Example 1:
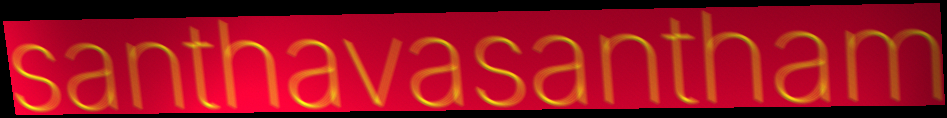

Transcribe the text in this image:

santhavasantham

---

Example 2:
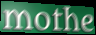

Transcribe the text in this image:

mothe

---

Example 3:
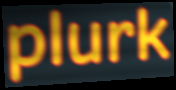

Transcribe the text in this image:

plurk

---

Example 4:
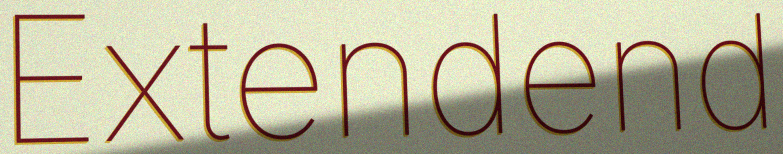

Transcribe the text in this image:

Extendend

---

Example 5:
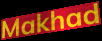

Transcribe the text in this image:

Makhad